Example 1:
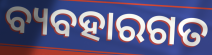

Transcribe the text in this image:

ବ୍ୟବହାରଗତ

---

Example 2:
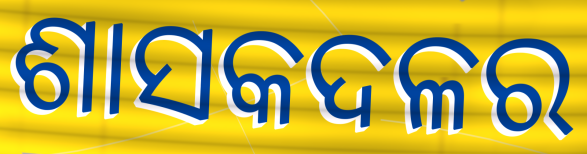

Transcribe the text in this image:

ଶାସକଦଳର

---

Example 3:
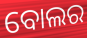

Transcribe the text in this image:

ବୋଲର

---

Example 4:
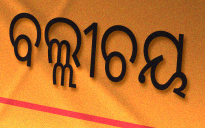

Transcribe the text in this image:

ବଲ୍ଲୀଚୟ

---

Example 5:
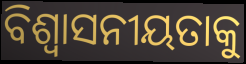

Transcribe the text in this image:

ବିଶ୍ୱାସନୀୟତାକୁ